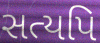
સત્યપિ